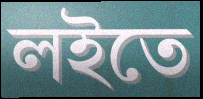
লইতে